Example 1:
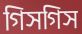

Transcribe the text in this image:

গিসগিস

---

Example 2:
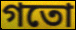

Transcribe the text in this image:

গতো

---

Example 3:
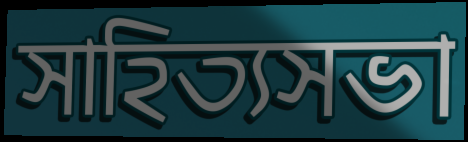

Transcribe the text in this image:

সাহিত্যসভা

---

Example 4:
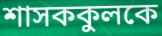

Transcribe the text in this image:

শাসককুলকে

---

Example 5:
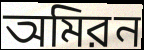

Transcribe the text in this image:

অমিরন